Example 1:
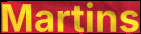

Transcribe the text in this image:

Martins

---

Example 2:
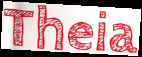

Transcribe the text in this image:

Theia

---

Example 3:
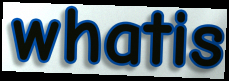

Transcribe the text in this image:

whatis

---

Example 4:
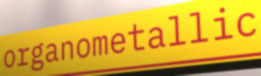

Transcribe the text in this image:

organometallic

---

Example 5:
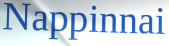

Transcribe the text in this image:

Nappinnai